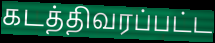
கடத்திவரப்பட்ட